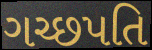
ગચ્છપતિ